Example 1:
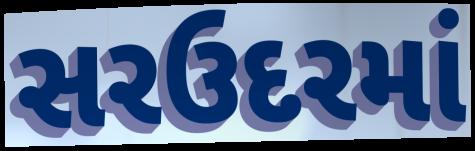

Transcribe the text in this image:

સરઉદરમાં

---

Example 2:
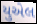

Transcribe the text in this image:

યુએલ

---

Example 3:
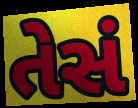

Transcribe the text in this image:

તેસં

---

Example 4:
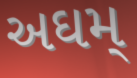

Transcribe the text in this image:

અઘમ્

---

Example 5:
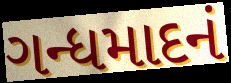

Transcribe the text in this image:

ગન્ધમાદનં